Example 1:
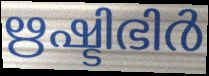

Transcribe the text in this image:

ഋഷ്ടിഭിർ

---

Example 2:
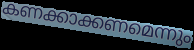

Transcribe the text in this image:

കണക്കാക്കണമെന്നും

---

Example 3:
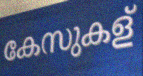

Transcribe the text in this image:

കേസുകള്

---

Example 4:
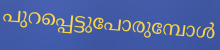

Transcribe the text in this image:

പുറപ്പെട്ടുപോരുമ്പോൾ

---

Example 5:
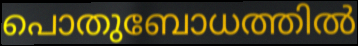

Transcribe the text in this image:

പൊതുബോധത്തിൽ